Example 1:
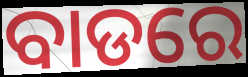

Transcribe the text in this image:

ବାଡରେ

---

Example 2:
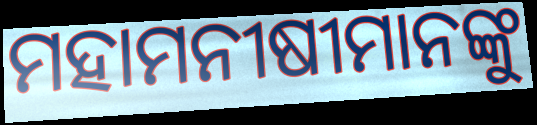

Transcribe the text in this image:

ମହାମନୀଷୀମାନଙ୍କୁ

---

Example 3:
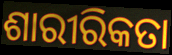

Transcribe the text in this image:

ଶାରୀରିକତା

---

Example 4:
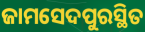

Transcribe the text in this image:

ଜାମସେଦପୁରସ୍ଥିତ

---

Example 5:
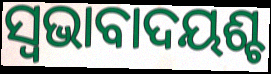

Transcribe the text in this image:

ସ୍ଵଭାବାଦୟଶ୍ଚ